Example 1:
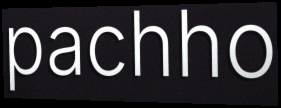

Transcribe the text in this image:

pachho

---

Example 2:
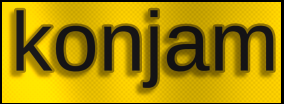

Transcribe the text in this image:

konjam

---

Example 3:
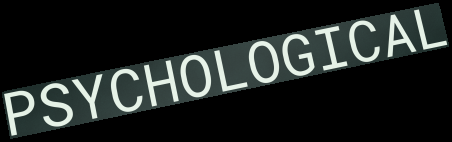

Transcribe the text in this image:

PSYCHOLOGICAL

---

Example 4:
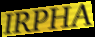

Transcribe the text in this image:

IRPHA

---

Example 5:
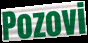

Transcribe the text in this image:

Pozovi